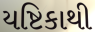
યષ્ટિકાથી